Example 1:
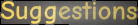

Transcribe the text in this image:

Suggestions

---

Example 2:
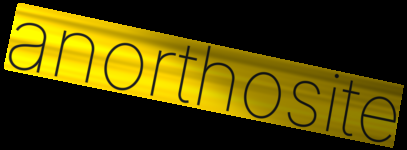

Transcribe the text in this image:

anorthosite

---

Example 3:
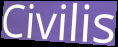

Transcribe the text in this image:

Civilis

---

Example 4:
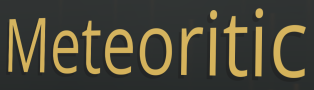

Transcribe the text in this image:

Meteoritic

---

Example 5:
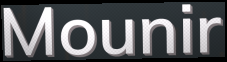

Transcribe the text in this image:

Mounir